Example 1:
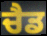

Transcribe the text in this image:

ਚੈਡ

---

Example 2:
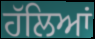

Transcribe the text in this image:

ਹੱਲਿਆਂ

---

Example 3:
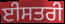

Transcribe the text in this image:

ਈਸਤਰੀ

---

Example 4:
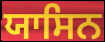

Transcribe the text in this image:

ਯਾਸਿਨ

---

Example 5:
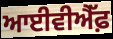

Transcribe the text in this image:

ਆਈਵੀਐੱਫ਼